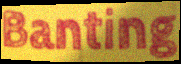
Banting